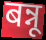
बन्नू